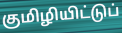
குமிழியிட்டுப்